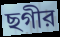
ছগীর